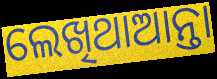
ଲେଖିଥାଆନ୍ତା